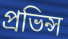
প্ৰভিন্স